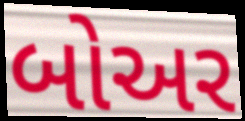
બોઅર